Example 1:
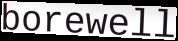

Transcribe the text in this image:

borewell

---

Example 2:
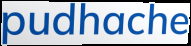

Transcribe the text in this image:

pudhache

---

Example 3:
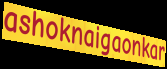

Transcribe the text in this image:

ashoknaigaonkar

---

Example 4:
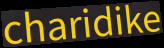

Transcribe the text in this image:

charidike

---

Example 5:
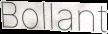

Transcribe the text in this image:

Bollant